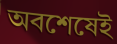
অবশেষেই